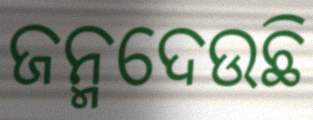
ଜନ୍ମଦେଉଛି